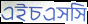
এইচএসসি